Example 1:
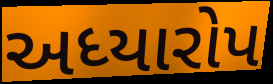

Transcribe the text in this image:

અધ્યારોપ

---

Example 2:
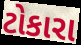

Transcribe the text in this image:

ટોકારા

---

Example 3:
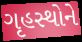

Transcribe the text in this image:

ગૃહસ્થોને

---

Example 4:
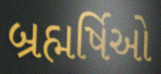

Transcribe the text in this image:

બ્રહ્મર્ષિઓ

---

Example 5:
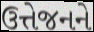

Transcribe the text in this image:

ઉત્તેજનને